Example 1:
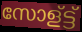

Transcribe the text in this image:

സോള്ട്ട്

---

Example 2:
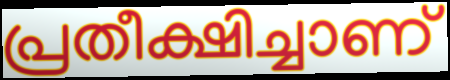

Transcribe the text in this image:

പ്രതീക്ഷിച്ചാണ്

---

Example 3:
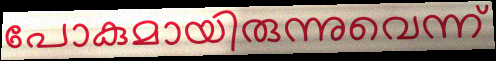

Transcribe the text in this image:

പോകുമായിരുന്നുവെന്ന്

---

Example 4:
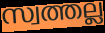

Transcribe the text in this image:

സ്വത്തല്ല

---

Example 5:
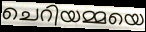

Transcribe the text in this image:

ചെറിയമ്മയെ